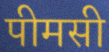
पीमसी